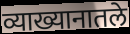
व्याख्यानातले